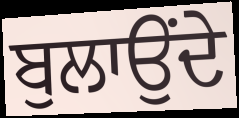
ਬੁਲਾਉਂਦੇ